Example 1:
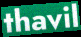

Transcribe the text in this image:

thavil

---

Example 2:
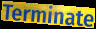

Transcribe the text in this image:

Terminate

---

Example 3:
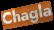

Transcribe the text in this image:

Chagla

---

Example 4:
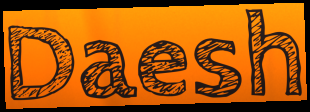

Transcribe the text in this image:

Daesh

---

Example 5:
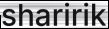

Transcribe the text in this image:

sharirik